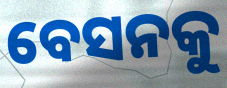
ବେସନକୁ